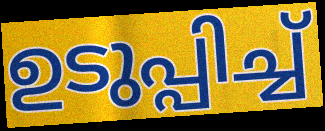
ഉടുപ്പിച്ച്